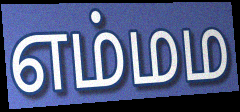
எம்மம